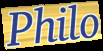
Philo